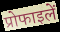
प्रोफाइलें